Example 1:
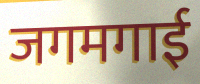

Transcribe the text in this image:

जगमगाई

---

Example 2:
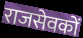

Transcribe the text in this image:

राजसेवकों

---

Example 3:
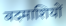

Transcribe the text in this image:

बदमाशियों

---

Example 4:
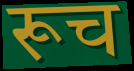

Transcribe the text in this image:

रूच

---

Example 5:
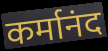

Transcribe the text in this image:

कर्मानंद